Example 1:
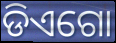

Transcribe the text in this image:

ଡିଏଗୋ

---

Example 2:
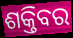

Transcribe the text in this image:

ଶକ୍ତିବର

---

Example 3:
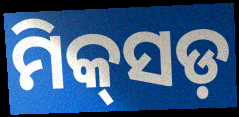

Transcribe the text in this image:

ମିକ୍‌ସଡ଼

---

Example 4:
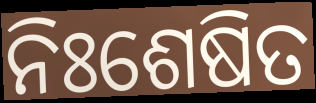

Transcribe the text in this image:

ନିଃଶେଷିତ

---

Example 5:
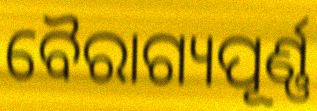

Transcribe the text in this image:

ବୈରାଗ୍ୟପୂର୍ଣ୍ଣ